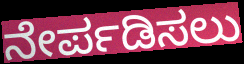
ನೇರ್ಪಡಿಸಲು